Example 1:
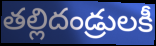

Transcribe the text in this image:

తల్లిదండ్రులకీ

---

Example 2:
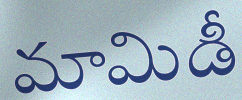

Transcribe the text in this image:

మామిడీ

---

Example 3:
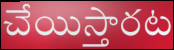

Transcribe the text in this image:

చేయిస్తారట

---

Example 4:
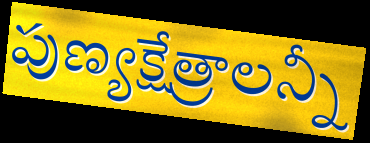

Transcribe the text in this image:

పుణ్యక్షేత్రాలన్నీ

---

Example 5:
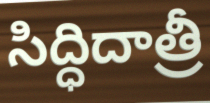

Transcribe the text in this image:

సిద్ధిదాత్రీ